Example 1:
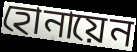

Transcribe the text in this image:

হোনায়েন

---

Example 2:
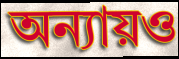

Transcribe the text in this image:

অন্যায়ও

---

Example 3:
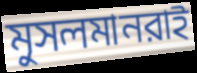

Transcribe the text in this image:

মুসলমানরাই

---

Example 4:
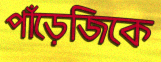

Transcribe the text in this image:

পাঁড়েজিকে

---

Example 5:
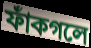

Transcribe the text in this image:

ফাঁকগলে